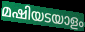
മഷിയടയാളം